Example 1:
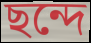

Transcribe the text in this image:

ছন্দে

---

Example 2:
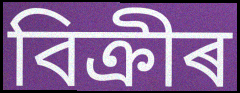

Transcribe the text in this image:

বিক্ৰীৰ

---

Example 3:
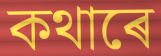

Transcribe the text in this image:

কথাৰে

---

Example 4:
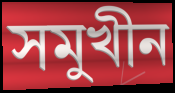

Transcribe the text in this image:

সমুখীন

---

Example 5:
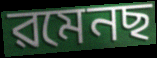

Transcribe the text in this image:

ৱমেনছ